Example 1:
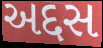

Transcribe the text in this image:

અદ્દસ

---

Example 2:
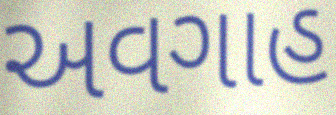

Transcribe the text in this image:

અવગાહ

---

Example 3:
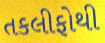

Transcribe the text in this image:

તકલીફોથી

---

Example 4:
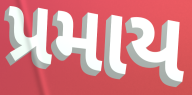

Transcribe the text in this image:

પ્રમાય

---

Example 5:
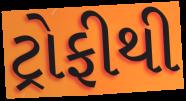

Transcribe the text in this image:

ટ્રોફીથી